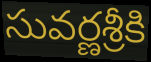
సువర్ణశ్రీకి